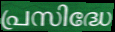
പ്രസിദ്ധേ